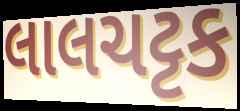
લાલચટ્ટક